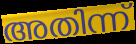
അതിന്ന്